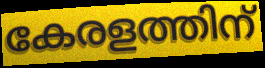
കേരളത്തിന്